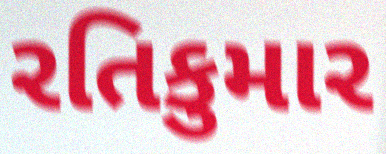
રતિકુમાર